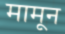
मामून